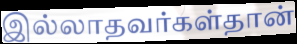
இல்லாதவர்கள்தான்